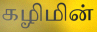
கழிமின்